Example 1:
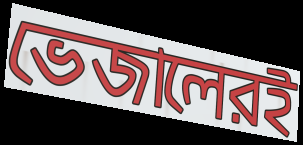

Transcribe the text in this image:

ভেজালেরই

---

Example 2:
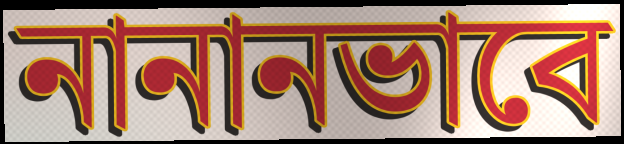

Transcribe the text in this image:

নানানভাবে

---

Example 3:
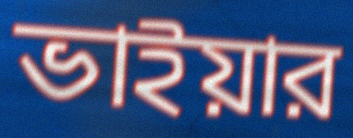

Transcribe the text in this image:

ভাইয়ার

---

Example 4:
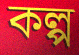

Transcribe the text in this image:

কল্প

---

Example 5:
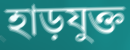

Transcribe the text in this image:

হাড়যুক্ত